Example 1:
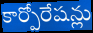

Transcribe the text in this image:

కార్పోరేషన్లు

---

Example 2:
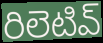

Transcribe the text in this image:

రిలెటివ్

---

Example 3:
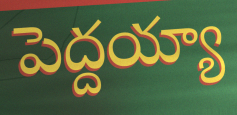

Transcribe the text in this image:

పెద్దయ్యా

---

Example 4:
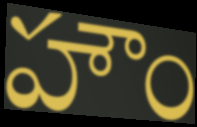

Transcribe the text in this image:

హౌం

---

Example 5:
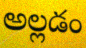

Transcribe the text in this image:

అల్లడం